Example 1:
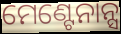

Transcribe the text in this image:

ମେଣ୍ଟେନାନ୍ସ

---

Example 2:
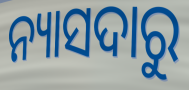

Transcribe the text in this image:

ନ୍ୟାସଦାରୁ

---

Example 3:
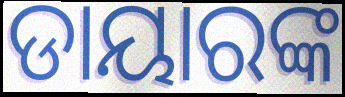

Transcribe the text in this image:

ଡାୟାରଙ୍କ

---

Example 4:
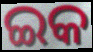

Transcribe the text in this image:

ଇକ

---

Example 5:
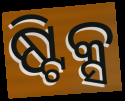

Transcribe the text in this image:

ଷ୍ଟିକ୍ସ